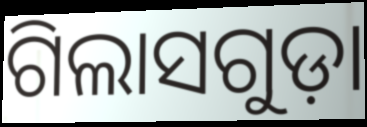
ଗିଲାସଗୁଡ଼ା